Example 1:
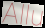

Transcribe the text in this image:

Allu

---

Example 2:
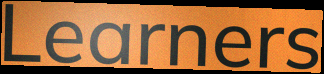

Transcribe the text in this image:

Learners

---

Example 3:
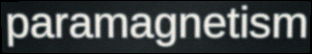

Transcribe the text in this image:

paramagnetism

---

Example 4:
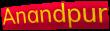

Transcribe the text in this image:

Anandpur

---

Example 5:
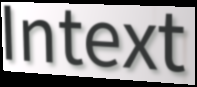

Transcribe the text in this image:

Intext